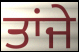
ਤਾਂਜੇ